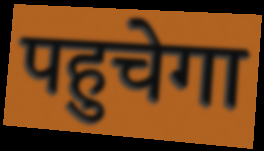
पहुचेगा